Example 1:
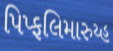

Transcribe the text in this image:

પિપ્ફલિમારુય્હ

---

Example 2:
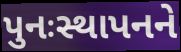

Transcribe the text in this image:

પુનઃસ્થાપનને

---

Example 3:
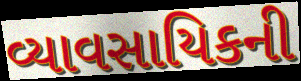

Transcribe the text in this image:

વ્યાવસાયિકની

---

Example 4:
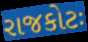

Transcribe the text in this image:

રાજકોટઃ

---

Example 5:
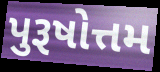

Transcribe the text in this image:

પુરૂષોત્તમ